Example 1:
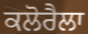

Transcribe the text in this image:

ਕਲੋਰੈਲਾ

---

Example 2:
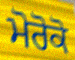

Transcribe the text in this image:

ਮੋਰੋਕੋ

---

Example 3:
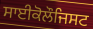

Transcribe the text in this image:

ਸਾਈਕੋਲੌਜਿਸਟ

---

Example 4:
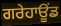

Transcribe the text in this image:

ਗਰੇਹਾਊਂਡ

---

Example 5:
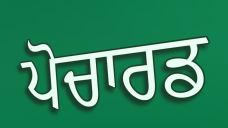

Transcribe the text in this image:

ਪੋਚਾਰਡ